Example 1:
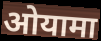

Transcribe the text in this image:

ओयामा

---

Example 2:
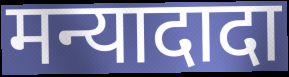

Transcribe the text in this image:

मन्यादादा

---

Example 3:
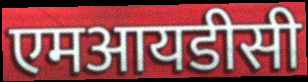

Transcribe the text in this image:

एमआयडीसी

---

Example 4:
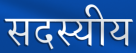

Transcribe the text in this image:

सदस्यीय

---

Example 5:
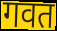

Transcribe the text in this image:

गवत